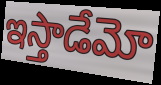
ఇస్తాడేమో